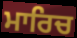
ਮਾਰਿਚ